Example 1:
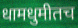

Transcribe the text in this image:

धामधुमीतच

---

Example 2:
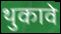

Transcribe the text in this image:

थुकावे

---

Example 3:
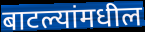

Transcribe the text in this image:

बाटल्यांमधील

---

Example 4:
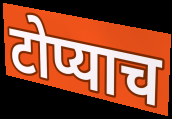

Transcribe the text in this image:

टोप्याच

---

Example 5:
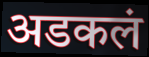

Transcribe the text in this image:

अडकलं